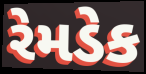
રેમડેક